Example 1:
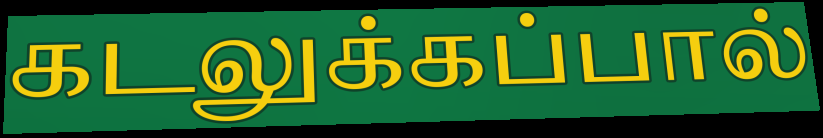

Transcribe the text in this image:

கடலுக்கப்பால்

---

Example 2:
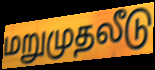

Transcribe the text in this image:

மறுமுதலீடு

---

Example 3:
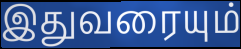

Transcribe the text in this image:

இதுவரையும்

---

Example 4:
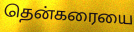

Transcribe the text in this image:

தென்கரையை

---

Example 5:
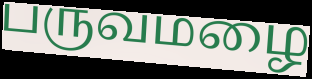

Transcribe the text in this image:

பருவமழை